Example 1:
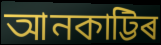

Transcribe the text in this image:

আনকাট্টিৰ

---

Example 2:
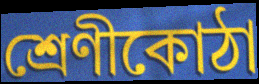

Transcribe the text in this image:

শ্ৰেণীকোঠা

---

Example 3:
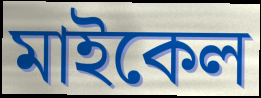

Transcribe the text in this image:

মাইকেল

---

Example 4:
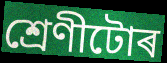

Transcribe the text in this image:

শ্ৰেণীটোৰ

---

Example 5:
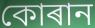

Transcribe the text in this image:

কোৰান